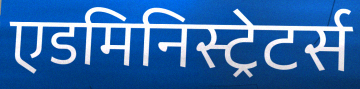
एडमिनिस्ट्रेटर्स